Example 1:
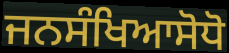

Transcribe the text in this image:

ਜਨਸੰਖਿਆਸੋਧੋ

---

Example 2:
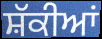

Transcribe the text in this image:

ਸ਼ੱਕੀਆਂ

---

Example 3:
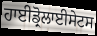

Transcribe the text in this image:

ਹਾਈਡ੍ਰੋਲਾਈਸੇਟਸ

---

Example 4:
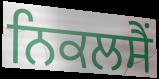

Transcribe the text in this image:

ਨਿਕਲਸੈਂ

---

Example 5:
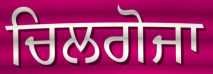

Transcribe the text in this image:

ਚਿਲਗੋਜਾ